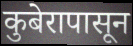
कुबेरापासून